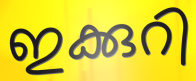
ഇക്കുറി